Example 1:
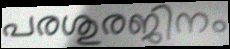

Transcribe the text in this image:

പരശുരജിനം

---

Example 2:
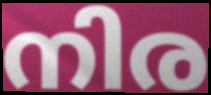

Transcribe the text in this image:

നിര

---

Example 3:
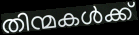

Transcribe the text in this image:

തിന്മകൾക്ക്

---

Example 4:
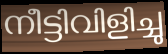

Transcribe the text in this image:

നീട്ടിവിളിച്ചു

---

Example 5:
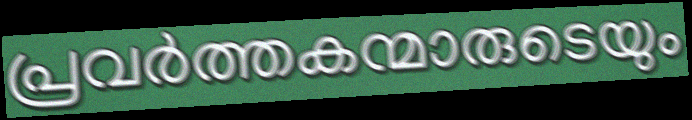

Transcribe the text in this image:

പ്രവർത്തകന്മാരുടെയും